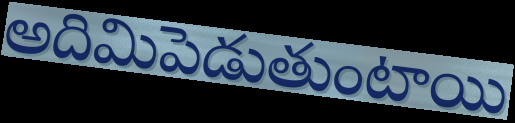
అదిమిపెడుతుంటాయి